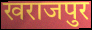
खराजपुर